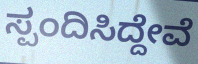
ಸ್ಪಂದಿಸಿದ್ದೇವೆ